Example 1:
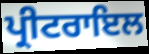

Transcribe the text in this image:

ਪ੍ਰੀਟਰਾਇਲ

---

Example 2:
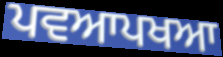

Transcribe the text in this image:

ਪਵਆਪਖਆ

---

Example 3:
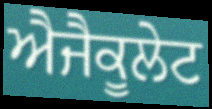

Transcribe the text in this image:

ਐਜੈਕੂਲੇਟ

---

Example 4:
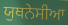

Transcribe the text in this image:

ਯੁਥਨੇਸੀਆ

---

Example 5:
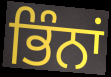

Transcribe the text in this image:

ਭਿੰਨਾਂ